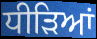
ਧੀੜਿਆਂ